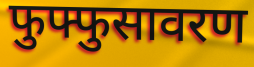
फुफ्फुसावरण